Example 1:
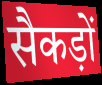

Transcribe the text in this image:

सैकड़ों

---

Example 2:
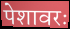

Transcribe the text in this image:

पेशावरः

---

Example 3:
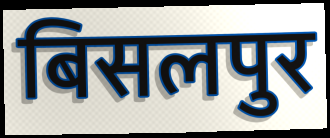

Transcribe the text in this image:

बिसलपुर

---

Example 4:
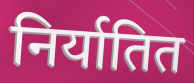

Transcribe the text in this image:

निर्यातित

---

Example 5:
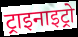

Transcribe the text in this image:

ट्राइनाइट्रो